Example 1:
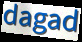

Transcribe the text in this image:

dagad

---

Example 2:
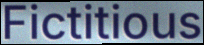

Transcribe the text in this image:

Fictitious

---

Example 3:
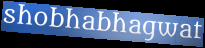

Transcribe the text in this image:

shobhabhagwat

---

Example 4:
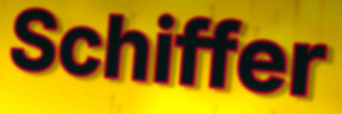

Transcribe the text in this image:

Schiffer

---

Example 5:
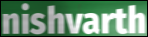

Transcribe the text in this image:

nishvarth